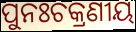
ପୁନଃଚକ୍ରଣୀୟ